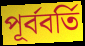
পূর্ববর্তি